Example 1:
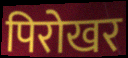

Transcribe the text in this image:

पिरोखर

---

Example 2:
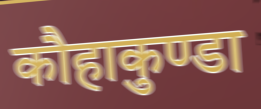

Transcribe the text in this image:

कौहाकुण्डा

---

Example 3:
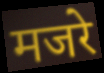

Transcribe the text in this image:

मजरे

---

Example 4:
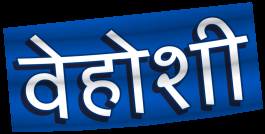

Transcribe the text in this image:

वेहोशी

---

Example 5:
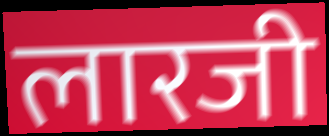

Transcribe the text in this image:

लारजी